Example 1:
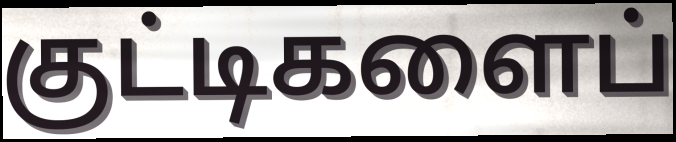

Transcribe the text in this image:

குட்டிகளைப்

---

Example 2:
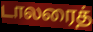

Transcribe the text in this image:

டாலரைத்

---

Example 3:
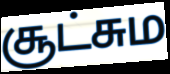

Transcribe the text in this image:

சூட்சும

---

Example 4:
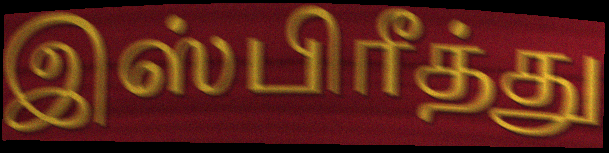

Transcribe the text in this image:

இஸ்பிரீத்து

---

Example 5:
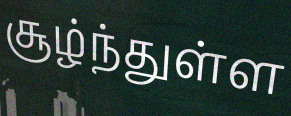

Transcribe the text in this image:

சூழ்ந்துள்ள